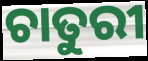
ଚାତୁରୀ